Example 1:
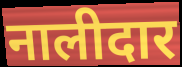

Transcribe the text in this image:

नालीदार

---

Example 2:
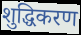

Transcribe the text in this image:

शुद्धिकरण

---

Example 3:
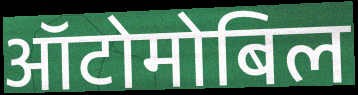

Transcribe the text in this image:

ऑटोमोबिल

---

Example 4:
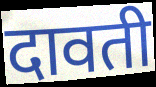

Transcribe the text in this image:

दावती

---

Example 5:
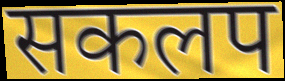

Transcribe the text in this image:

सकलप